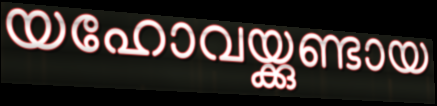
യഹോവയ്ക്കുണ്ടായ